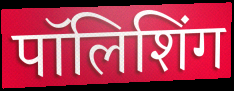
पॉलिशिंग